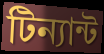
টিন্যান্ট